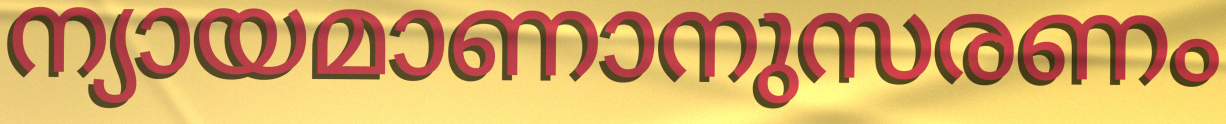
ന്യായമാണാനുസരണം